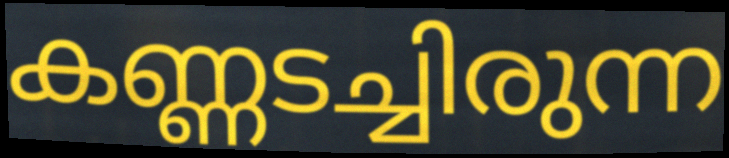
കണ്ണടച്ചിരുന്ന